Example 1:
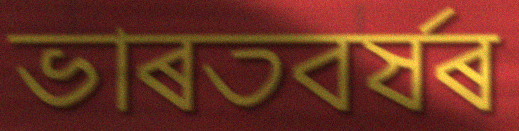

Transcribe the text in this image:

ভাৰতবৰ্ষৰ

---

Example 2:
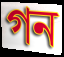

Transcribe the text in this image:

গন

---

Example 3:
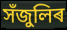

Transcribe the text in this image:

সঁজুলিৰ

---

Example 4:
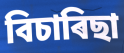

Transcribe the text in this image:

বিচাৰিছা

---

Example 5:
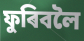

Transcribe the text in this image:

ফুৰিবলৈ